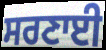
ਸਰਣਾਈ